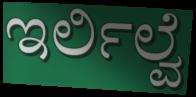
ಇರ್ಲಿಲ್ವೆ